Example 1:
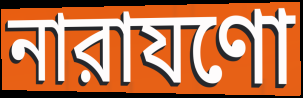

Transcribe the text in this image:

নারাযণো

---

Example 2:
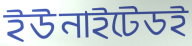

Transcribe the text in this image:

ইউনাইটেডই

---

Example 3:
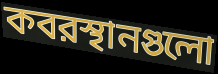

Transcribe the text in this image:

কবরস্থানগুলো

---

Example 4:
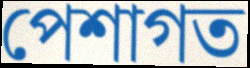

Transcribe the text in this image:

পেশাগত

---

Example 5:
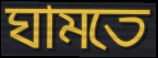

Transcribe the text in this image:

ঘামতে